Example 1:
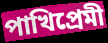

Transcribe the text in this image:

পাখিপ্রেমী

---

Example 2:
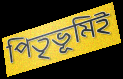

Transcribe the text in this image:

পিতৃভূমিই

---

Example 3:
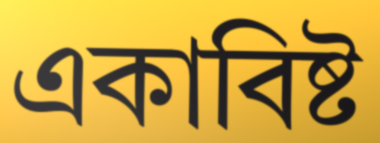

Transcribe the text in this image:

একাবিষ্ট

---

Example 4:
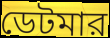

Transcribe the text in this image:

ডেটমার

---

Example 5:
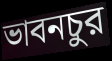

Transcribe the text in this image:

ভাবনচুর